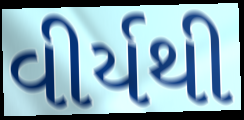
વીર્યથી